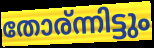
തോര്ന്നിട്ടും